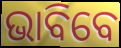
ଭାବିବେ